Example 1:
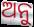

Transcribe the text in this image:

ଅନୁ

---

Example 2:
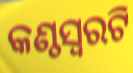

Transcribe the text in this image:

କଣ୍ଠସ୍ଵରଟି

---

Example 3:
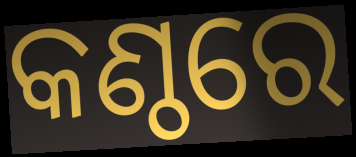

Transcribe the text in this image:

କଣ୍ଠରେ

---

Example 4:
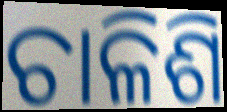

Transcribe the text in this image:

ଚାଳିଶି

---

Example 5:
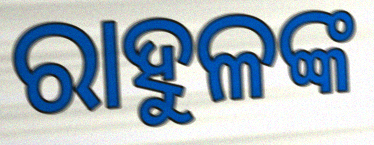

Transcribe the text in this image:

ରାହୁଳଙ୍କ